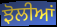
ਝੋਲੀਆਂ